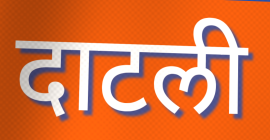
दाटली